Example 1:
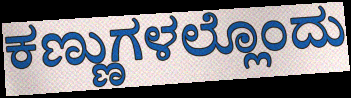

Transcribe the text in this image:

ಕಣ್ಣುಗಳಲ್ಲೊಂದು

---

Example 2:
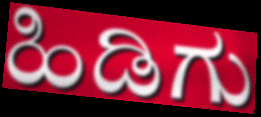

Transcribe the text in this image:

ಹಿಡಿಗು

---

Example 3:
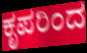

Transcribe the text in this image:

ಕೃಪರಿಂದ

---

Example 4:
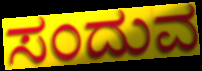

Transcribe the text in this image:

ಸಂದುವ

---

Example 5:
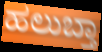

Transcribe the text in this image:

ಹಲುಬ್ತಾ